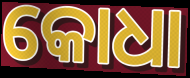
କୋଧା